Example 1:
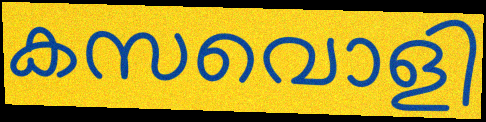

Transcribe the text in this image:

കസവൊളി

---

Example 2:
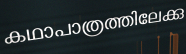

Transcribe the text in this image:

കഥാപാത്രത്തിലേക്കു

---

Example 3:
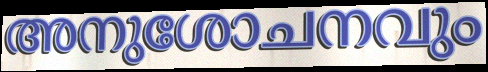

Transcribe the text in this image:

അനുശോചനവും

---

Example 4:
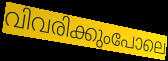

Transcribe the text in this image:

വിവരിക്കുംപോലെ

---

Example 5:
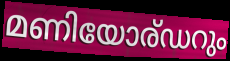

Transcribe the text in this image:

മണിയോര്ഡറും